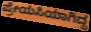
ಪ್ರೇಯಸಿಯಾಗಿದ್ದ